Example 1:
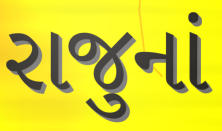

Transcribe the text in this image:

રાજુનાં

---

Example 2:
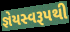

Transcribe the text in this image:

જ્ઞેયસ્વરૂપથી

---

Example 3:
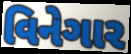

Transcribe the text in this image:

વિનેગાર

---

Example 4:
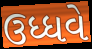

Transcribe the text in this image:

ઉધ્ધવે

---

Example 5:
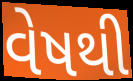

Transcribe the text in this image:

વેષથી